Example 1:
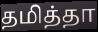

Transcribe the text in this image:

தமித்தா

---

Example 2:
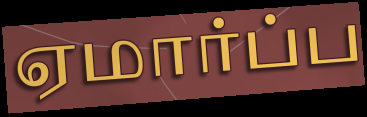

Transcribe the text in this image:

ஏமார்ப்ப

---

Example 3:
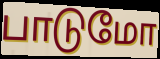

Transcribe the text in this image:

பாடுமோ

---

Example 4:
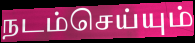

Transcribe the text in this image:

நடம்செய்யும்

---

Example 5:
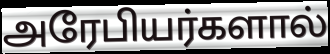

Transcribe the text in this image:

அரேபியர்களால்